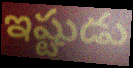
ఇష్టుడు